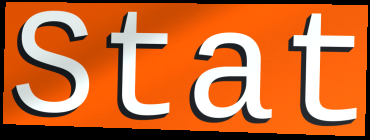
Stat